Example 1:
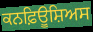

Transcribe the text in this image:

ਕਨਫ਼ਿਊਸ਼ਿਅਸ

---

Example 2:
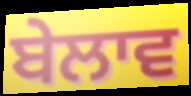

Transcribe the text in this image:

ਬੇਲਾਵ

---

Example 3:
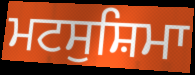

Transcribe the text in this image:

ਮਟਸੁਸ਼ਿਮਾ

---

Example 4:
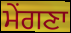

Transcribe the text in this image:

ਮੇਂਗਣਾ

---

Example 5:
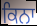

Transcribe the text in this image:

ਕਿਨਾ